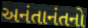
અનંતાનંતનો